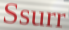
Ssurr